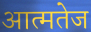
आत्मतेज